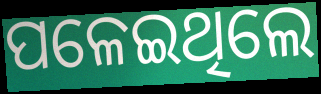
ପଳେଇଥିଲେ